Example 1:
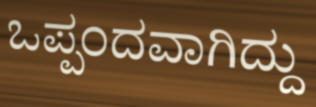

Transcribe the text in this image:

ಒಪ್ಪಂದವಾಗಿದ್ದು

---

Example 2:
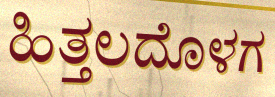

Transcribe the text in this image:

ಹಿತ್ತಲದೊಳಗ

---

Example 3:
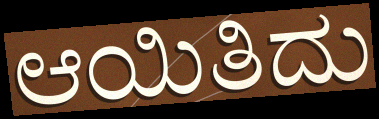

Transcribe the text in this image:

ಆಯಿತಿದು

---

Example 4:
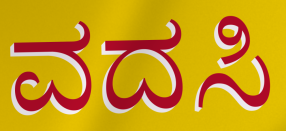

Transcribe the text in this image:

ವದಸಿ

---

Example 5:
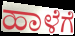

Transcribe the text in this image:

ಹಾಳೆಗೆ